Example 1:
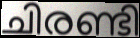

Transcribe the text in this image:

ചിരണ്ടി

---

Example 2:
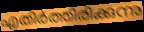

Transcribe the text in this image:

എതിർത്തിരിക്കുന്നു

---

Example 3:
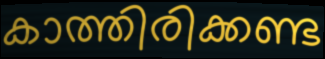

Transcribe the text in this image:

കാത്തിരിക്കണ്ട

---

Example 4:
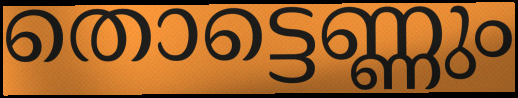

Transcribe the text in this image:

തൊട്ടെണ്ണും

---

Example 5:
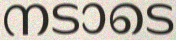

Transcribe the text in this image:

നടാടെ